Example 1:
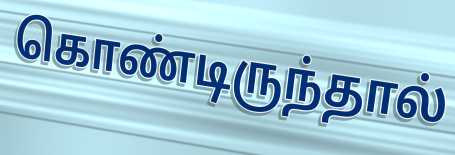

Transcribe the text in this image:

கொண்டிருந்தால்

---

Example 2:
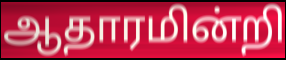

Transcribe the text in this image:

ஆதாரமின்றி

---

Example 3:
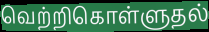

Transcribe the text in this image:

வெற்றிகொள்ளுதல்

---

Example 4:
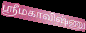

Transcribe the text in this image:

ஸ்ரீமகாவிஷ்ணு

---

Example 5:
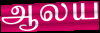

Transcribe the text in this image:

ஆலய